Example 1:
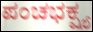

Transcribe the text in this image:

ಪಂಚಭಕ್ಷ್ಯ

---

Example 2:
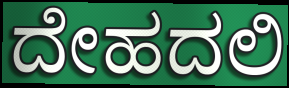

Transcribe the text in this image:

ದೇಹದಲಿ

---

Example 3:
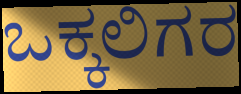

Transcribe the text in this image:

ಒಕ್ಕಲಿಗರ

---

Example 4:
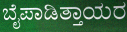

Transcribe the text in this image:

ಬೈಪಾಡಿತ್ತಾಯರ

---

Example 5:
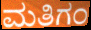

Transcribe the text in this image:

ಮತಿಗಂ